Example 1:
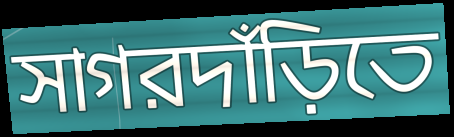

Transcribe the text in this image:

সাগরদাঁড়িতে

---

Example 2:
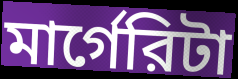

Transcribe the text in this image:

মার্গেরিটা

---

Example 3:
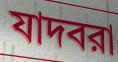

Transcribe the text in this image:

যাদবরা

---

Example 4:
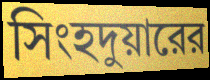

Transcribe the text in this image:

সিংহদুয়ারের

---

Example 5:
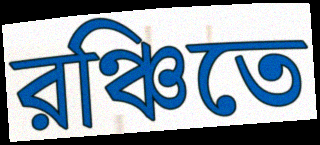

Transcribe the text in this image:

রঞ্চিতে